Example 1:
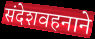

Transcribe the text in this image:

संदेशवहनाने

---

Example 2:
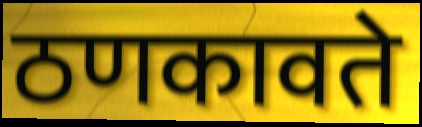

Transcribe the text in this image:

ठणकावते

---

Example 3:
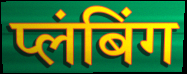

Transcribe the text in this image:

प्लंबिंग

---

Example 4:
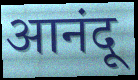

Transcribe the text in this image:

आनंदू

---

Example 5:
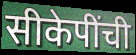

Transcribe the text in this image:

सीकेपींची